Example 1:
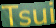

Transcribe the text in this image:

Tsui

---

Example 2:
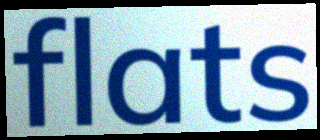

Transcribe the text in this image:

flats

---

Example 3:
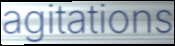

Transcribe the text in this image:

agitations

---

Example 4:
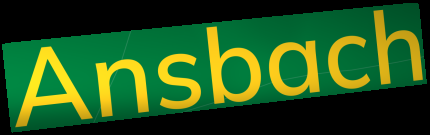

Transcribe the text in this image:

Ansbach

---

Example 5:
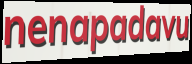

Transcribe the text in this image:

nenapadavu